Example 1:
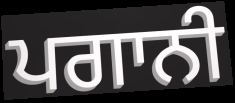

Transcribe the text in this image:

ਪਗਾਨੀ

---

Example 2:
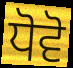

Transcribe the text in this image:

ਧੋਵੋ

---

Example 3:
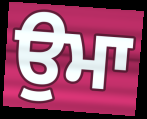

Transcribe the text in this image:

ਉਮਾ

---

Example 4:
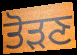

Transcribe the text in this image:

ਤੋੜਣ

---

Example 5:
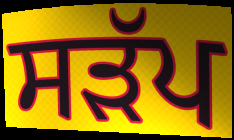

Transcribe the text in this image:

ਸੜੱਪ